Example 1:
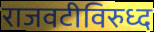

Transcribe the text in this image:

राजवटीविरुध्द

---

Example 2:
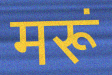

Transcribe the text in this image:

मरूं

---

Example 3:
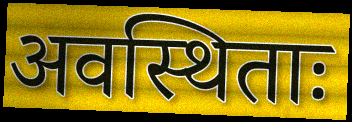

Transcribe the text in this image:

अवस्थिताः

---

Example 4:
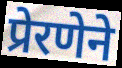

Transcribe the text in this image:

प्रेरणेने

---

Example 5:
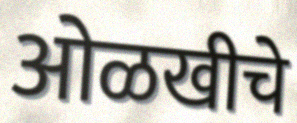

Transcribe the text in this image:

ओळखीचे